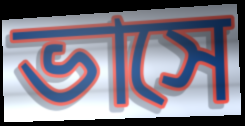
ভাসে